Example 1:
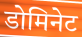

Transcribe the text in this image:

डोमिनेट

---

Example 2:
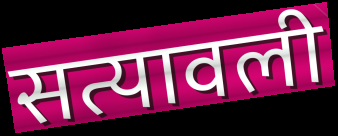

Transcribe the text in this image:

सत्यावली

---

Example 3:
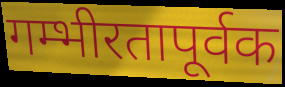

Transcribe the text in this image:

गम्भीरतापूर्वक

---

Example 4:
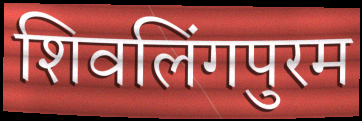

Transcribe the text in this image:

शिवलिंगपुरम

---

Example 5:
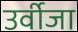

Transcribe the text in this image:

उर्वीजा